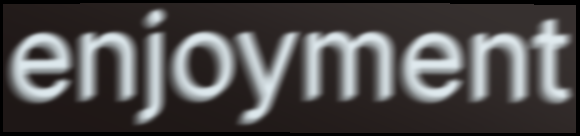
enjoyment